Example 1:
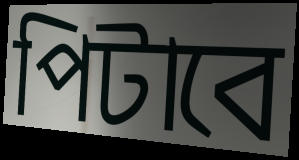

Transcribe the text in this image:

পিটাবে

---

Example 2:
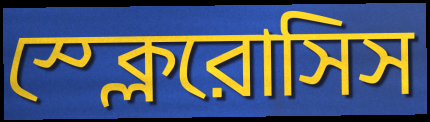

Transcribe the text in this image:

স্ক্লেরোসিস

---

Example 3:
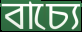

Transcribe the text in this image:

বাচ্যে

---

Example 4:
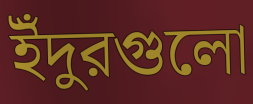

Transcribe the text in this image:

ইঁদুরগুলো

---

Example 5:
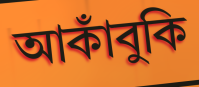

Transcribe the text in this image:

আকাঁবুকি